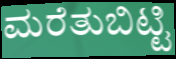
ಮರೆತುಬಿಟ್ಟಿ